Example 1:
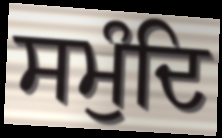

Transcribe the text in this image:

ਸਮੁੰਦਿ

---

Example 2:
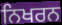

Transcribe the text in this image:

ਨਿਖਰਨ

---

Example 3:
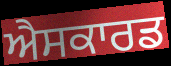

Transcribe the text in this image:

ਐਸਕਾਰਡ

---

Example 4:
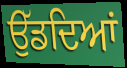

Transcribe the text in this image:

ਉੱਡਦਿਆਂ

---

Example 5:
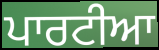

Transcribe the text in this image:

ਪਾਰਟੀਆ